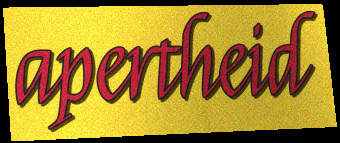
apertheid